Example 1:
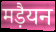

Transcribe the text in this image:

मड़ैयन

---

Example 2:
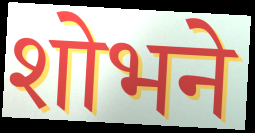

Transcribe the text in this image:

शोभने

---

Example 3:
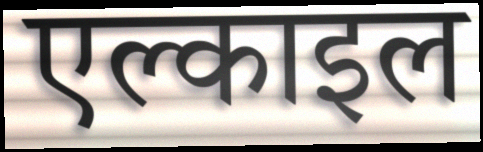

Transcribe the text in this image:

एल्काइल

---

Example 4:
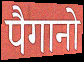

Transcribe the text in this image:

पैगानो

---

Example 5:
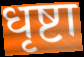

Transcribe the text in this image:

धृष्टा